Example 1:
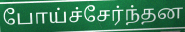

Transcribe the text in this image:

போய்ச்சேர்ந்தன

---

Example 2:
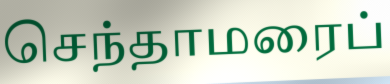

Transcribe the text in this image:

செந்தாமரைப்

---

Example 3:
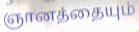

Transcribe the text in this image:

ஞானத்தையும்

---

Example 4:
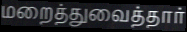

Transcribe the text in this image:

மறைத்துவைத்தார்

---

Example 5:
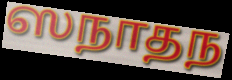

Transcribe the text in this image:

ஸநாதந